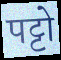
पट्टो